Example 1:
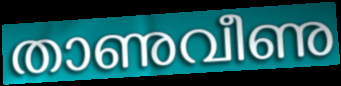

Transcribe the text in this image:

താണുവീണു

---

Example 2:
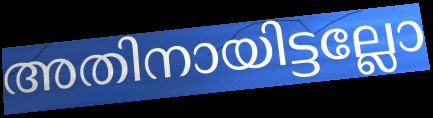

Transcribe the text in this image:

അതിനായിട്ടല്ലോ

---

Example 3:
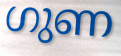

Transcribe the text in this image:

ഗുണ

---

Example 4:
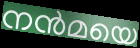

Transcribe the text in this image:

നൻമയെ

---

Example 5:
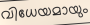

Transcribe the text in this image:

വിധേയമായും